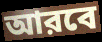
আরবে